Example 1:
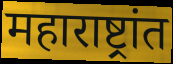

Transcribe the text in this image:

महाराष्ट्रांत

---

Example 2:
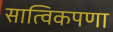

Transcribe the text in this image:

सात्विकपणा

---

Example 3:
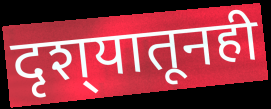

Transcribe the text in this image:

दृश्यातूनही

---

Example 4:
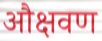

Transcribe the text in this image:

औक्षवण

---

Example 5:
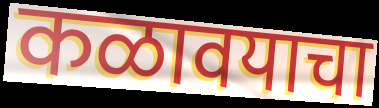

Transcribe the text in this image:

कळावयाचा